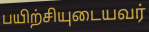
பயிற்சியுடையவர்